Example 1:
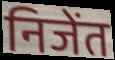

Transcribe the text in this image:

निजेंत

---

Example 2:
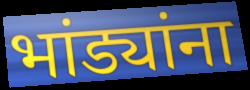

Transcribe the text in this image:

भांड्यांना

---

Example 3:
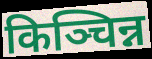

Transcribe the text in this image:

किञ्चिन्न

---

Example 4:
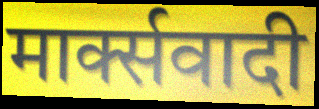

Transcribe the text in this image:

मार्क्सवादी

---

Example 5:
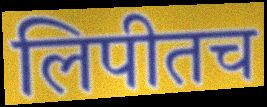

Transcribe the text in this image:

लिपीतच